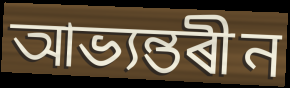
আভ্যন্তৰীন